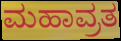
ಮಹಾವ್ರತ